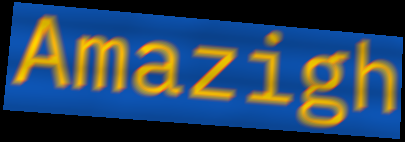
Amazigh